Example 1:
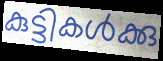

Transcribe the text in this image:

കുട്ടികൾക്കു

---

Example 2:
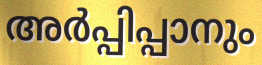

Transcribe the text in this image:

അർപ്പിപ്പാനും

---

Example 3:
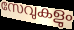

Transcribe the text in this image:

സേവുകളും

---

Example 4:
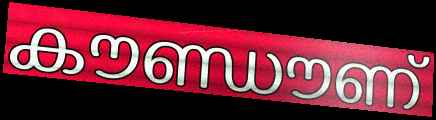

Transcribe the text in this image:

കൗണ്ഡൗണ്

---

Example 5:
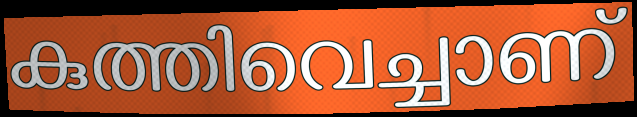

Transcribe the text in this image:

കുത്തിവെച്ചാണ്